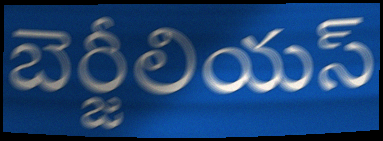
బెర్జీలియస్